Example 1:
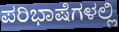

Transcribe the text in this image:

ಪರಿಭಾಷೆಗಳಲ್ಲಿ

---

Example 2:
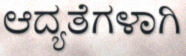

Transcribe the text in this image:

ಆದ್ಯತೆಗಳಾಗಿ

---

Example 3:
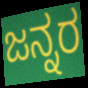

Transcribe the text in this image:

ಜನ್ನರ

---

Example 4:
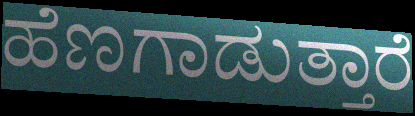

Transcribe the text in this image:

ಹೆಣಗಾಡುತ್ತಾರೆ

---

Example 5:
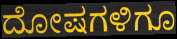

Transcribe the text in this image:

ದೋಷಗಳಿಗೂ